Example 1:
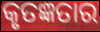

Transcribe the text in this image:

କୃତଜ୍ଞତାର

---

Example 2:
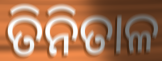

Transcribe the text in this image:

ତିନିତାଳ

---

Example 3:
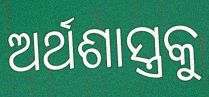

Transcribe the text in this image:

ଅର୍ଥଶାସ୍ତ୍ରକୁ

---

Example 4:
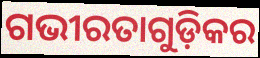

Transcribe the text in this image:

ଗଭୀରତାଗୁଡ଼ିକର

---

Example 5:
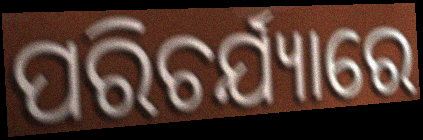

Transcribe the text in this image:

ପରିଚର୍ଯ୍ୟାରେ